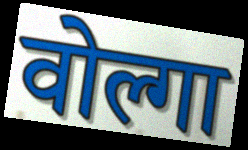
वोल्गा